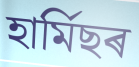
হাৰ্মিছৰ